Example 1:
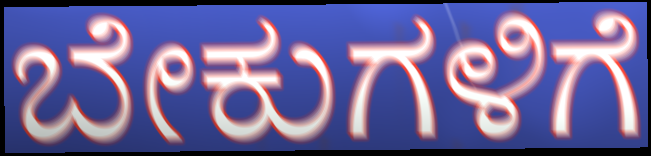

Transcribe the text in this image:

ಬೇಕುಗಳಿಗೆ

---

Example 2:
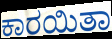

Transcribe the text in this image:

ಕಾರಯಿತಾ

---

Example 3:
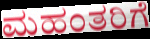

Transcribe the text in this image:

ಮಹಂತರಿಗೆ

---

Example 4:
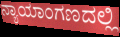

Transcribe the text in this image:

ನ್ಯಾಯಾಂಗಣದಲ್ಲಿ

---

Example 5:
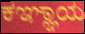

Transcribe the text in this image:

ಕಞ್ಞಾಯ